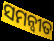
ସମନ୍ଵୀତ